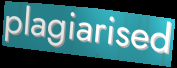
plagiarised